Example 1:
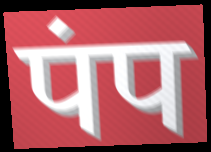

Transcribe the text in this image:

पंप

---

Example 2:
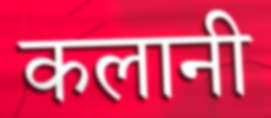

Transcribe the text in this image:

कलानी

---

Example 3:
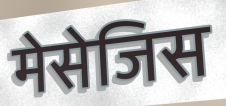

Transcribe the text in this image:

मेसेजिस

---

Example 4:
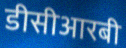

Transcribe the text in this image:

डीसीआरबी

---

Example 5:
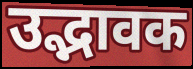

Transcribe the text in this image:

उद्भावक